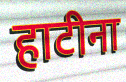
हाटीना